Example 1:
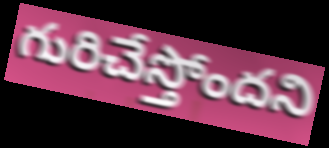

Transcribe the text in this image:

గురిచేస్తోందని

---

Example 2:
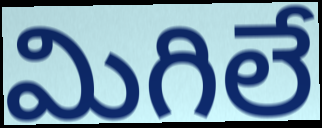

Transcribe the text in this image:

మిగిలే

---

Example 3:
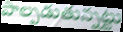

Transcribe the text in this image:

పాల్పడుతున్నట్టు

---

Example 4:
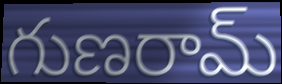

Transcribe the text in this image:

గుణరామ్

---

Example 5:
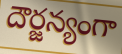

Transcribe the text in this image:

దౌర్జన్యంగా